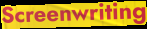
Screenwriting